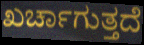
ಖರ್ಚಾಗುತ್ತದೆ